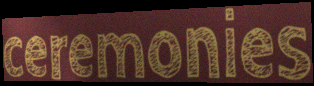
ceremonies